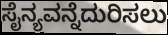
ಸೈನ್ಯವನ್ನೆದುರಿಸಲು